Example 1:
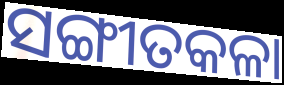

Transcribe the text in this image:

ସଙ୍ଗୀତକଳା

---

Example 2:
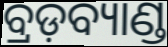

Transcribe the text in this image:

ବ୍ରଡ଼ବ୍ୟାଣ୍ଡ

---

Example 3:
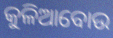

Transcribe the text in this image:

କୁଳିଆବୋଉ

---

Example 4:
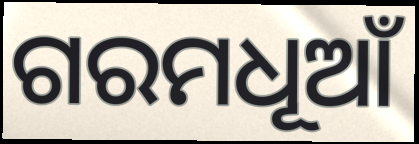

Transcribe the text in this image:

ଗରମଧୂଆଁ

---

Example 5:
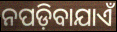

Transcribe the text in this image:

ନପଡ଼ିବାଯାଏଁ